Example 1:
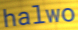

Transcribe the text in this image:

halwo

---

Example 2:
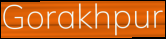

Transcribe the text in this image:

Gorakhpur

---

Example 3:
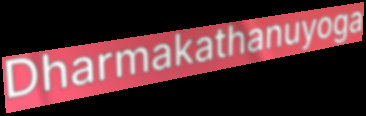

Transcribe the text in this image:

Dharmakathanuyoga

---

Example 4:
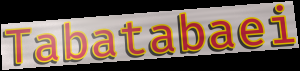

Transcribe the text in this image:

Tabatabaei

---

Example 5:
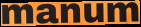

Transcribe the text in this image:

manum